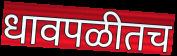
धावपळीतच